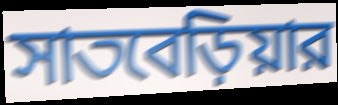
সাতবেড়িয়ার